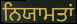
ਨਿਯਾਮਤਾਂ